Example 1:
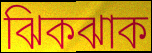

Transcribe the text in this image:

ঝিকঝাক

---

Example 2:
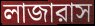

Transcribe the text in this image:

লাজারাস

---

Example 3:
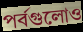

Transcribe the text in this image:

পর্বগুলোও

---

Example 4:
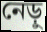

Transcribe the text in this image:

নেড়ু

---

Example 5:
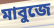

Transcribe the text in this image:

মাবুজে